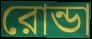
রোন্ডা